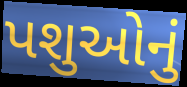
પશુઓનું